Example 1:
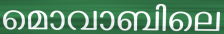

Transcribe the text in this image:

മൊവാബിലെ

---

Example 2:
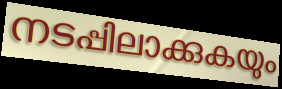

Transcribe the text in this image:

നടപ്പിലാക്കുകയും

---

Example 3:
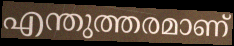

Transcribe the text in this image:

എന്തുത്തരമാണ്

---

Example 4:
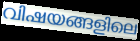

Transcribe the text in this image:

വിഷയങ്ങളിലെ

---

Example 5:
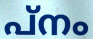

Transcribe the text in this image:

പ്നം